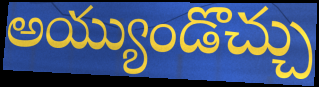
అయ్యుండొచ్చు